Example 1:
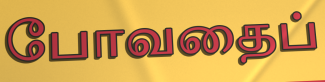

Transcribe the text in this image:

போவதைப்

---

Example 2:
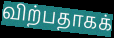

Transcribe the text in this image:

விற்பதாகக்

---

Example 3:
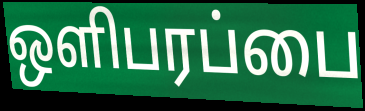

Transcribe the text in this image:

ஒளிபரப்பை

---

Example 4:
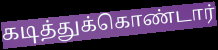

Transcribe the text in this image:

கடித்துக்கொண்டார்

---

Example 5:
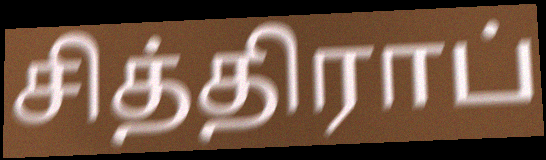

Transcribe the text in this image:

சித்திராப்